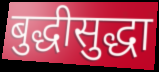
बुद्धीसुद्धा